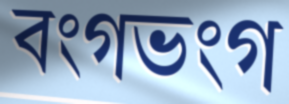
বংগভংগ